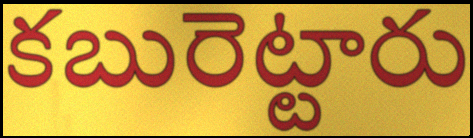
కబురెట్టారు